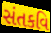
સંતકવિ